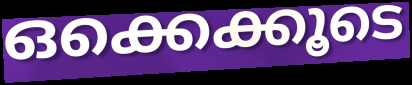
ഒക്കെക്കൂടെ